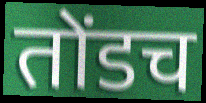
तोंडच